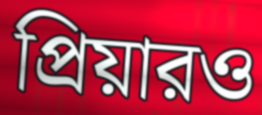
প্রিয়ারও